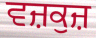
ਵਜ਼ਕੁਜ਼